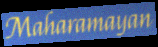
Maharamayan